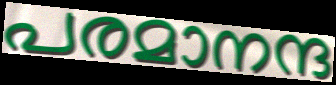
പരമാനന്ദ